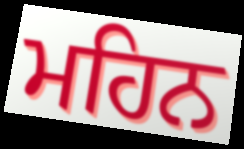
ਮਹਿਨ